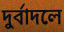
দুর্বাদলে